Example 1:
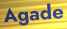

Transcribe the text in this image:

Agade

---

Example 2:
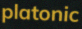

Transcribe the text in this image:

platonic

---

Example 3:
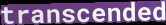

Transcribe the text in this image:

transcended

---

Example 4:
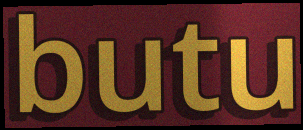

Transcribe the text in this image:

butu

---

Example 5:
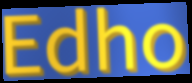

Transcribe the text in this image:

Edho